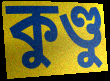
কুণ্ডু